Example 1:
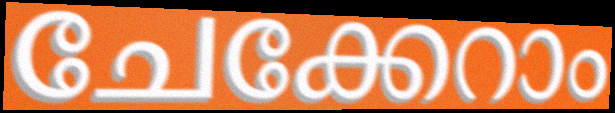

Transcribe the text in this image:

ചേക്കേറാം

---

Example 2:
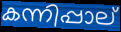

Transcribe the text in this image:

കന്നിപ്പാല്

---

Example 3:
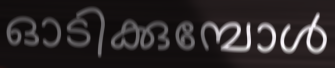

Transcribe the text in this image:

ഓടിക്കുമ്പോൾ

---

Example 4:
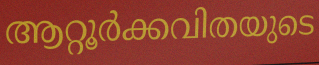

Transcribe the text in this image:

ആറ്റൂർക്കവിതയുടെ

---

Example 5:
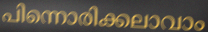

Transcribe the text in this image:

പിന്നൊരിക്കലാവാം